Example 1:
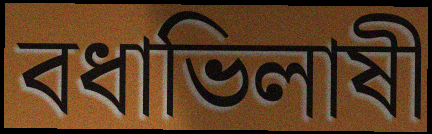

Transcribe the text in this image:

বধাভিলাষী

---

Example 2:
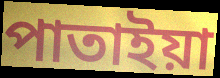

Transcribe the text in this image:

পাতাইয়া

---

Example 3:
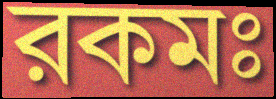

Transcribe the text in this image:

রকমঃ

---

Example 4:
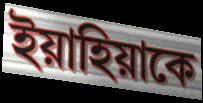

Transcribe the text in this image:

ইয়াহিয়াকে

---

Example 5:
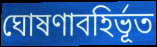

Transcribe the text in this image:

ঘোষণাবহির্ভূত